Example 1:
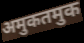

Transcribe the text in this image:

अमुकतमुक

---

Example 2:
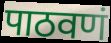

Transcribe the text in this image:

पाठवणं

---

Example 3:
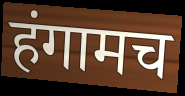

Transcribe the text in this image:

हंगामच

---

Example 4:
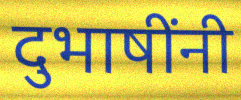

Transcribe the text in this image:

दुभाषींनी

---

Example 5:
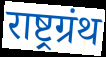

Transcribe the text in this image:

राष्ट्रग्रंथ